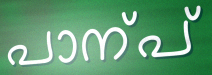
പാന്പ്